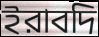
ইরাবদি